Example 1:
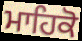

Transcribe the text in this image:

ਮਾਹਿਕੋ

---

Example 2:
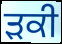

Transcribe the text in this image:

ੜਕੀ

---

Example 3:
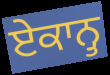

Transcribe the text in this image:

ਏਕਾਨ੍ਤ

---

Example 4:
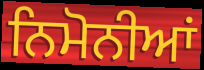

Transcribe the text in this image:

ਨਿਮੋਨੀਆਂ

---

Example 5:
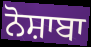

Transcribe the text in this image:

ਨੋਸ਼ਾਬਾ